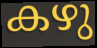
കഴു